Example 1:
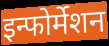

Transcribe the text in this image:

इन्फोर्मेशन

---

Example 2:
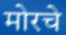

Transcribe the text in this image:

मोरचे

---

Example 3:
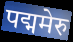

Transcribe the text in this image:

पद्ममेरु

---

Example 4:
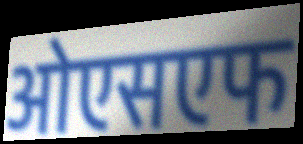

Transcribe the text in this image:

ओएसएफ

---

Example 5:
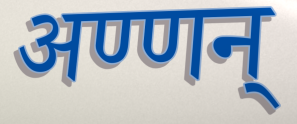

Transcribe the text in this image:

अण्णन्